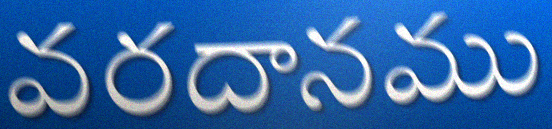
వరదానము